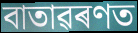
বাতাৱৰণত